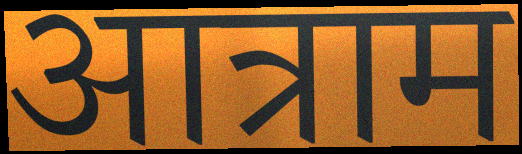
आत्राम